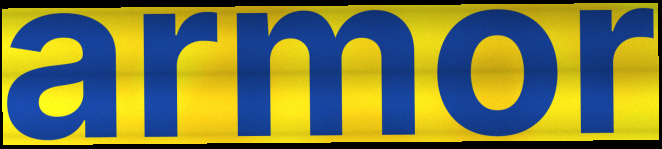
armor